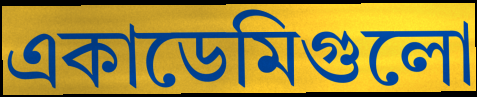
একাডেমিগুলো